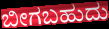
ಬೀಗಬಹುದು